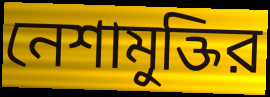
নেশামুক্তির